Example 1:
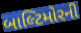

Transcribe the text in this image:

બાલ્ટિમોરની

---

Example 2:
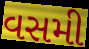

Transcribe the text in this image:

વસમી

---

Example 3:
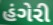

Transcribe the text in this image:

હંગેરી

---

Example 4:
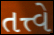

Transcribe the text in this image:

તત્ત્વે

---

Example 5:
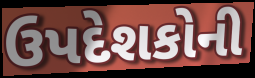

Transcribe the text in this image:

ઉપદેશકોની